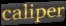
caliper